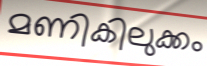
മണികിലുക്കം